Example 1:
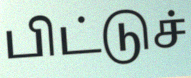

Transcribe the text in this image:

பிட்டுச்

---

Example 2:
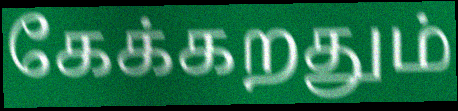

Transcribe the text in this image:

கேக்கறதும்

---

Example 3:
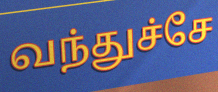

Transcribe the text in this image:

வந்துச்சே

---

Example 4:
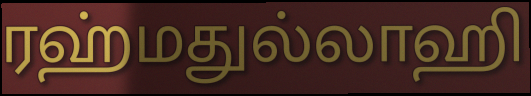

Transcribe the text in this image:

ரஹ்மதுல்லாஹி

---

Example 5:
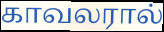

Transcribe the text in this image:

காவலரால்